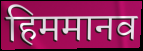
हिममानव